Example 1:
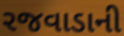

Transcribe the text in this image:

રજવાડાની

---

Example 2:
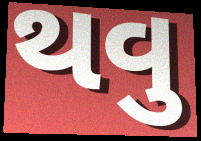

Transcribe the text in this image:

થવુ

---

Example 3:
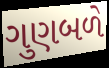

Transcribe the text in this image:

ગુણબળે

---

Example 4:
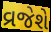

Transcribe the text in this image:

વ્રજેશે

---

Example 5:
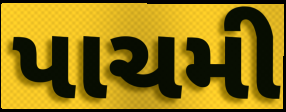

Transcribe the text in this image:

પાચમી